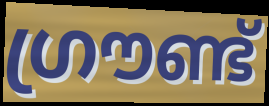
ഗ്രൗണ്ട്